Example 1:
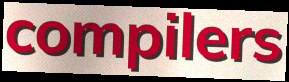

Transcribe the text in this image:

compilers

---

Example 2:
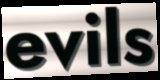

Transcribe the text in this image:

evils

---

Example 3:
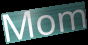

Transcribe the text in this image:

Mom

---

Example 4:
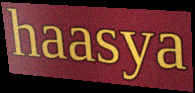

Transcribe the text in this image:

haasya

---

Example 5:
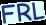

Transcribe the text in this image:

FRL